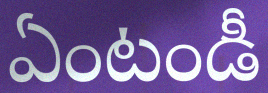
ఏంటండీ